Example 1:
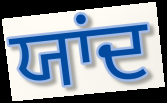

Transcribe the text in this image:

ਯਾਂਦ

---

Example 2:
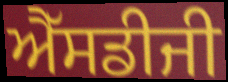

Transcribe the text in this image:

ਐੱਸਡੀਜੀ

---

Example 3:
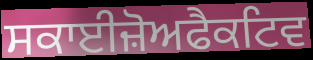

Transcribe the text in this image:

ਸਕਾਈਜ਼ੋਅਫੈਕਟਿਵ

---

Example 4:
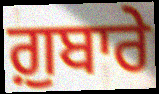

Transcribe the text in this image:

ਗ਼ੁਬਾਰੇ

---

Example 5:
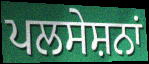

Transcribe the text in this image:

ਪਲਸੇਸ਼ਨਾਂ